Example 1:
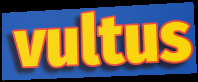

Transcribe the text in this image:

vultus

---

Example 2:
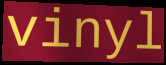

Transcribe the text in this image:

vinyl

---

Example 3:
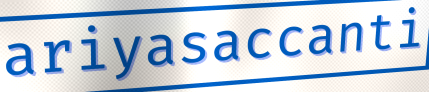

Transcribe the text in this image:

ariyasaccanti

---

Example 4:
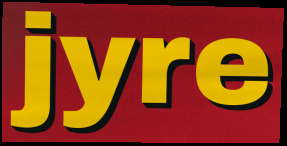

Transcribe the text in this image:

jyre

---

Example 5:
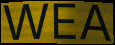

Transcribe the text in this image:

WEA